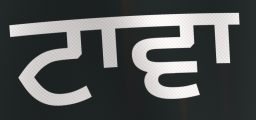
ਟਾਵਾ